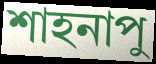
শাহনাপু